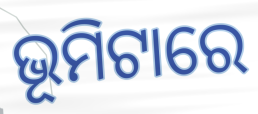
ଭୂମିଟାରେ